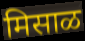
मिसाळ